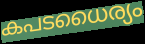
കപടധൈര്യം